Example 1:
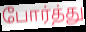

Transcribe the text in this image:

போர்த்து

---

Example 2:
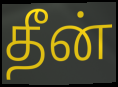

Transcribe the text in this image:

தீன்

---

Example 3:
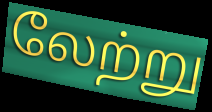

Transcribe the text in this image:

லேற்று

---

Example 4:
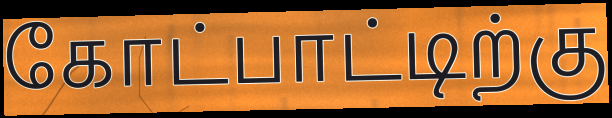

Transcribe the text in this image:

கோட்பாட்டிற்கு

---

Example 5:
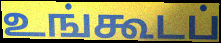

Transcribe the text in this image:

உங்கூடப்